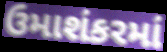
ઉમાશંકરમાં